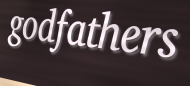
godfathers